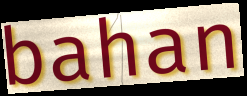
bahan